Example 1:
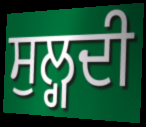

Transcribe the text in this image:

ਸੁਲ੍ਗਦੀ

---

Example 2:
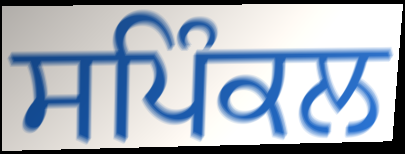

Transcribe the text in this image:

ਸਪਿੰਕਲ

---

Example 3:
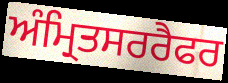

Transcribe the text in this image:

ਅੰਮ੍ਰਿਤਸਰਰੈਫਰ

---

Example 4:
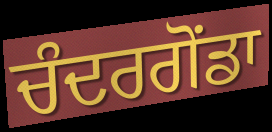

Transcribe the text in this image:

ਚੰਦਰਗੋਂਡਾ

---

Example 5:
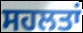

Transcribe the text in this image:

ਸਹਲਤਾਂ